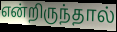
என்றிருந்தால்